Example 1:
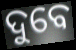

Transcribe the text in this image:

ଦୁବେ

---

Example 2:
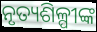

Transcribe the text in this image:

ନୃତ୍ୟଶିଳ୍ପୀଙ୍କ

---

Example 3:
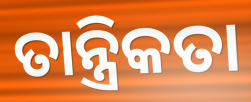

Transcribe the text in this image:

ତାନ୍ତ୍ରିକତା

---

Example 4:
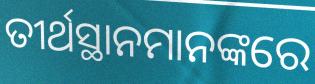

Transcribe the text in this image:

ତୀର୍ଥସ୍ଥାନମାନଙ୍କରେ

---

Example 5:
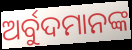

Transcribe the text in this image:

ଅର୍ବୁଦମାନଙ୍କ